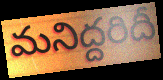
మనిద్దరిదీ